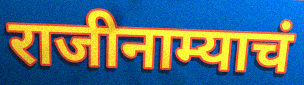
राजीनाम्याचं